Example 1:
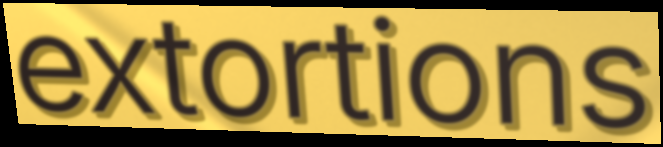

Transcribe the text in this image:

extortions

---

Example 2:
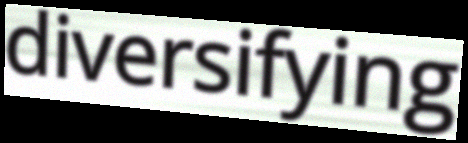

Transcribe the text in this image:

diversifying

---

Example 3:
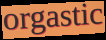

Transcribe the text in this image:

orgastic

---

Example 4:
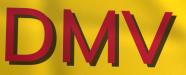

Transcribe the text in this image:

DMV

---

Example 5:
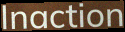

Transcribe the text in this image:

Inaction